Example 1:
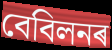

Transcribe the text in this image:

বেবিলনৰ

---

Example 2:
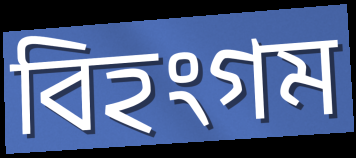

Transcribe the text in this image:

বিহংগম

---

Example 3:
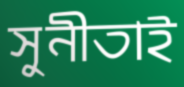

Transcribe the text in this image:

সুনীতাই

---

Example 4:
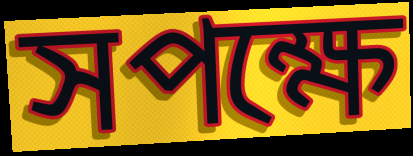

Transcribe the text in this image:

সপক্ষে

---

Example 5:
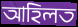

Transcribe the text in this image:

আহিলত